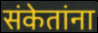
संकेतांना